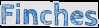
Finches